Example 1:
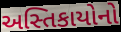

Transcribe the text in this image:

અસ્તિકાયોનો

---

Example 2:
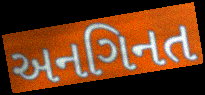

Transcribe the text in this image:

અનગિનત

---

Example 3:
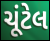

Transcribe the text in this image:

ચૂંટેલ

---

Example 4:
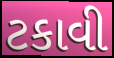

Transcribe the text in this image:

ટકાવી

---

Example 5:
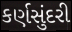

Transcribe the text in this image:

કર્ણસુંદરી